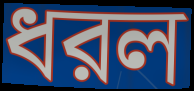
ধরল